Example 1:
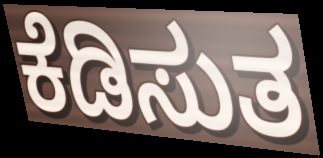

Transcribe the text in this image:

ಕೆಡಿಸುತ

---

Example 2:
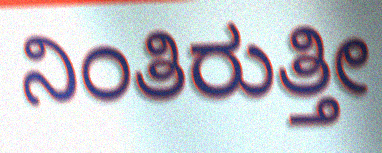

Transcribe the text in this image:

ನಿಂತಿರುತ್ತೀ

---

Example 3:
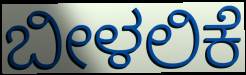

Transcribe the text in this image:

ಬೀಳಲಿಕೆ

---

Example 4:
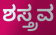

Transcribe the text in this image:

ಶಸ್ತ್ರವ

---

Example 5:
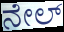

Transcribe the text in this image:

ನೇಲ್